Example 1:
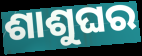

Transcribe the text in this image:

ଶାଶୁଘର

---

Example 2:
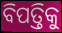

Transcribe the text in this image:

ବିପତ୍ତିକୁ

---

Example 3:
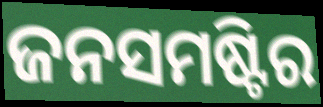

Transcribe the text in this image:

ଜନସମଷ୍ଟିର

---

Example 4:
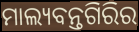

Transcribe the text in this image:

ମାଲ୍ୟବନ୍ତଗିରିର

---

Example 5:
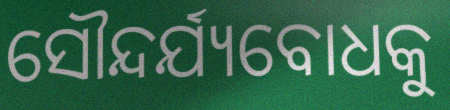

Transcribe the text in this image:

ସୌନ୍ଦର୍ଯ୍ୟବୋଧକୁ